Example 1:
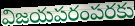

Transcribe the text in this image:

విజయపరంపరకు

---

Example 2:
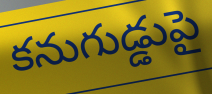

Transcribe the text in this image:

కనుగుడ్డుపై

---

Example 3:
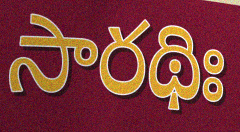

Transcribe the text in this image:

సారథిః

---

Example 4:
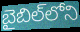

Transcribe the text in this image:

బైబిల్‌లోని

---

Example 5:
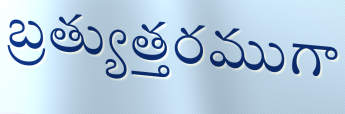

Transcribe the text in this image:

బ్రత్యుత్తరముగా